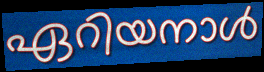
ഏറിയനാൾ